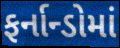
ફર્નાન્ડોમાં